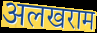
अलखराम